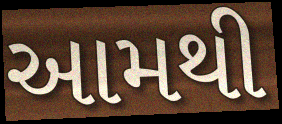
આમથી